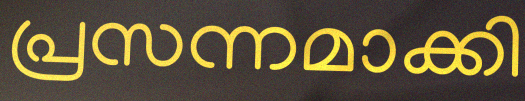
പ്രസന്നമാക്കി